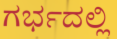
ಗರ್ಭದಲ್ಲಿ